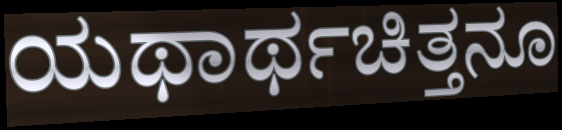
ಯಥಾರ್ಥಚಿತ್ತನೂ